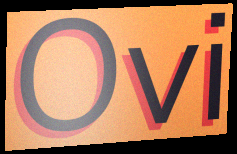
Ovi